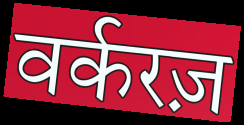
वर्करज़